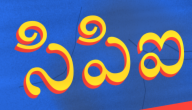
సిపిఐ